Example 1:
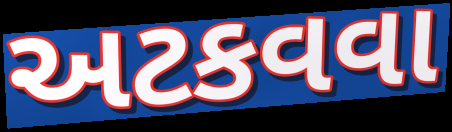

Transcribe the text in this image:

અટકવવા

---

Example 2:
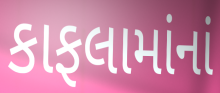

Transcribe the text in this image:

કાફલામાંનાં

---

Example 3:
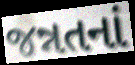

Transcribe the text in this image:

જન્નતનાં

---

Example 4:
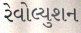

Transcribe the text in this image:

રેવોલ્યુશન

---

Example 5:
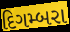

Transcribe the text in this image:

દિગમ્બરા